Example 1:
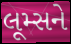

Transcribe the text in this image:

લૂમ્સને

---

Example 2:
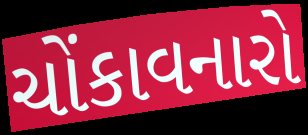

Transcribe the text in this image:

ચોંકાવનારો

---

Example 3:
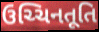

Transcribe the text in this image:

ઉચ્ચિનતૂતિ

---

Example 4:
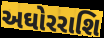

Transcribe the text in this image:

અઘોરરાશિ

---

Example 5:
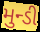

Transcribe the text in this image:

મુન્ડી